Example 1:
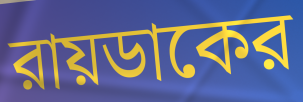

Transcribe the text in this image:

রায়ডাকের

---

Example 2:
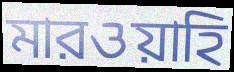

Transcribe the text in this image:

মারওয়াহি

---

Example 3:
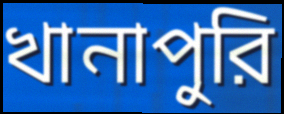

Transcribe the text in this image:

খানাপুরি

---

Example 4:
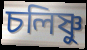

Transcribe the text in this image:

চলিষ্ণু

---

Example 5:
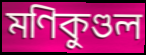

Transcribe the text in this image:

মণিকুণ্ডল